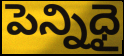
పెన్నిధై